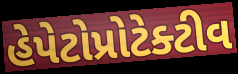
હેપેટોપ્રોટેક્ટીવ